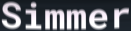
Simmer